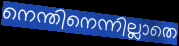
നെന്തിനെന്നില്ലാതെ